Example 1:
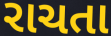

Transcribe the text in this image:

રાચતા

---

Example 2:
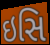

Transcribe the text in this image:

ઇસિ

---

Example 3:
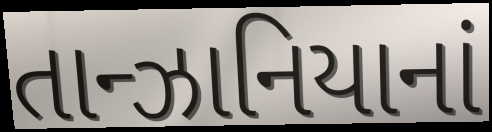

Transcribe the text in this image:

તાન્ઝાનિયાનાં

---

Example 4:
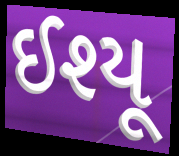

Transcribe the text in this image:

ઈશ્યૂ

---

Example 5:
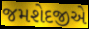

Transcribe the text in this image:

જમશેદજીએ